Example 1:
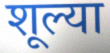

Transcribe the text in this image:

शूल्या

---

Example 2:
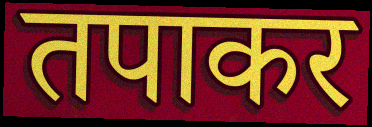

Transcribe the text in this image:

तपाकर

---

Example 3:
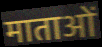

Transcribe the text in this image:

माताओं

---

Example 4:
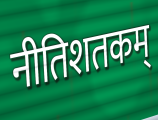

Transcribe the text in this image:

नीतिशतकम्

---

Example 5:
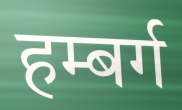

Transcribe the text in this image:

हम्बर्ग